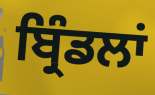
ਬ੍ਰਿੰਡਲਾਂ